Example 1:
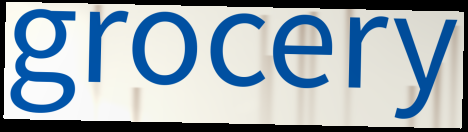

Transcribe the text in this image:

grocery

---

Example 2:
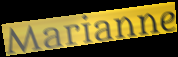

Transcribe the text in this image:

Marianne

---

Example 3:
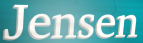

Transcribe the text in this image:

Jensen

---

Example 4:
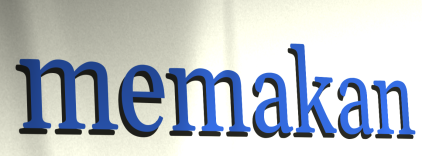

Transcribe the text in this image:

memakan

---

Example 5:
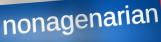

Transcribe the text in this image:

nonagenarian